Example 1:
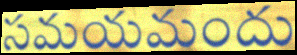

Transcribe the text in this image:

సమయమందు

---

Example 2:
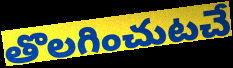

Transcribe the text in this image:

తొలగించుటచే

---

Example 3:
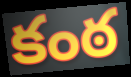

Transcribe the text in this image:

కంఠ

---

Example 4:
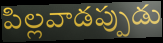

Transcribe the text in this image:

పిల్లవాడప్పుడు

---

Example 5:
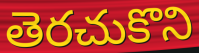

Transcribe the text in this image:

తెరచుకొని